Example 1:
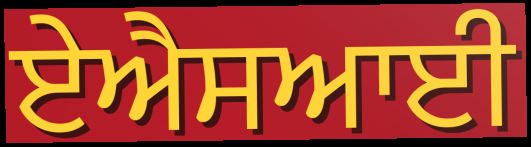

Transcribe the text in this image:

ਏਐਸਆਈ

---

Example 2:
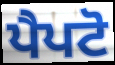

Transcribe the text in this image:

ਪੈਪਟੋ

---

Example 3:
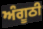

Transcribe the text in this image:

ਅੰਗੂਠੀ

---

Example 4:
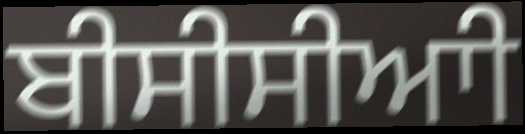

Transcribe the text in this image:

ਬੀਸੀਸੀਆੀ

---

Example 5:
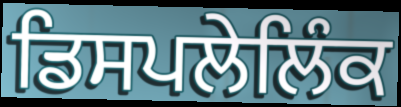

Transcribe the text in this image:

ਡਿਸਪਲੇਲਿੰਕ